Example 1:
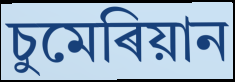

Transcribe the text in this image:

চুমেৰিয়ান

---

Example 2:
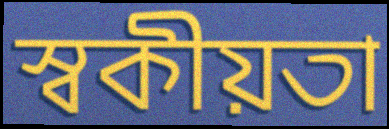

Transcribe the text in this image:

স্বকীয়তা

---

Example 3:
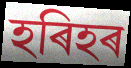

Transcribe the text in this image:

হৰিহৰ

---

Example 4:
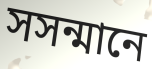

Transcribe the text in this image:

সসন্মানে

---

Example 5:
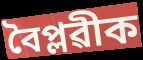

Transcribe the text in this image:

বৈপ্লৱীক